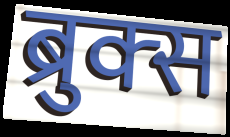
ब्रुक्‍स